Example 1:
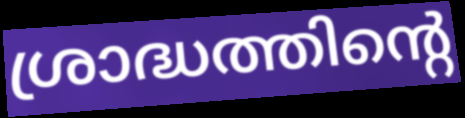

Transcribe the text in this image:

ശ്രാദ്ധത്തിന്റെ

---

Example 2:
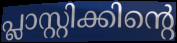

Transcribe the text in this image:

പ്ലാസ്റ്റിക്കിന്റെ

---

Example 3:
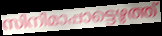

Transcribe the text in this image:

സിനിമാപ്പാട്ടെഴുത്ത്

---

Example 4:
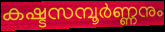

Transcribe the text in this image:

കഷ്ടസമ്പൂർണ്ണനും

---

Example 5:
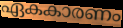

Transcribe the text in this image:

ഏകകാരണം